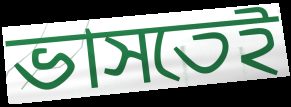
ভাসতেই